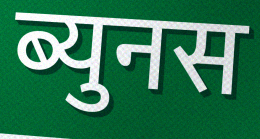
ब्युनस